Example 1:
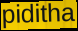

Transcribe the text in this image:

piditha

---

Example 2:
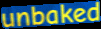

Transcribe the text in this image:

unbaked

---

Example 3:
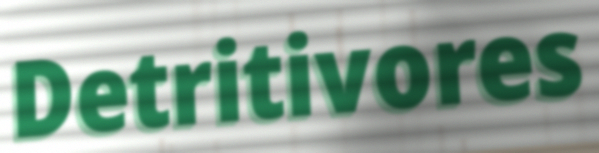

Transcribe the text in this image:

Detritivores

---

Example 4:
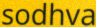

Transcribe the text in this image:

sodhva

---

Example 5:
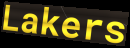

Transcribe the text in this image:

Lakers